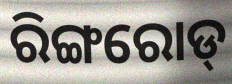
ରିଙ୍ଗରୋଡ୍